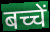
बच्चें